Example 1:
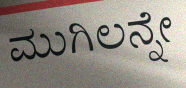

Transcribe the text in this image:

ಮುಗಿಲನ್ನೇ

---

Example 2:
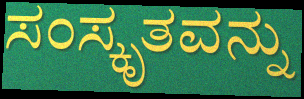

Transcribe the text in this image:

ಸಂಸ್ಕೃತವನ್ನು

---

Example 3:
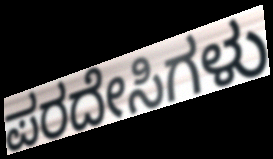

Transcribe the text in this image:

ಪರದೇಸಿಗಳು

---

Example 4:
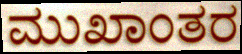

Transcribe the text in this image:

ಮುಖಾಂತರ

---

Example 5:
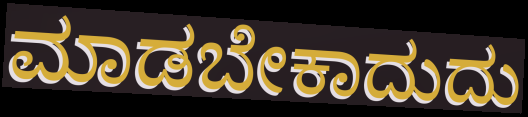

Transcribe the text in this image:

ಮಾಡಬೇಕಾದುದು